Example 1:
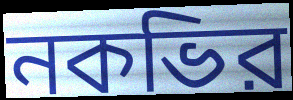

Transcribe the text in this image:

নকভির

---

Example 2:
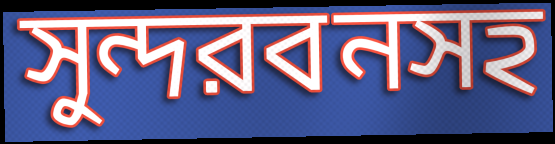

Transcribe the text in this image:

সুন্দরবনসহ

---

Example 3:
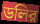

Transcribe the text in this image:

ডলির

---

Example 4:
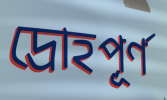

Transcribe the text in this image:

দ্রোহপূর্ণ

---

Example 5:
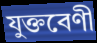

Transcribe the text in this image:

যুক্তবেণী